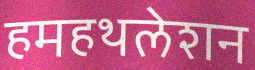
हमहथलेशन